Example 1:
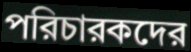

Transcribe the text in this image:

পরিচারকদের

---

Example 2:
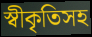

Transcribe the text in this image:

স্বীকৃতিসহ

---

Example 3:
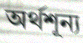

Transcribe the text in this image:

অর্থশূন্য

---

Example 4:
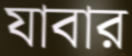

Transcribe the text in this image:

যাবার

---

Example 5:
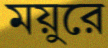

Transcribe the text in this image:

ময়ুরে